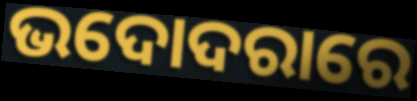
ଭଦୋଦରାରେ